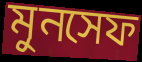
মুনসেফ